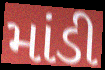
માંડી